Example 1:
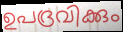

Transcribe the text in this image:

ഉപദ്രവിക്കും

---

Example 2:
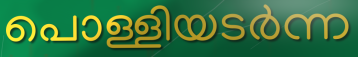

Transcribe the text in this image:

പൊള്ളിയടർന്ന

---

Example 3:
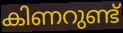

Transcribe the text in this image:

കിണറുണ്ട്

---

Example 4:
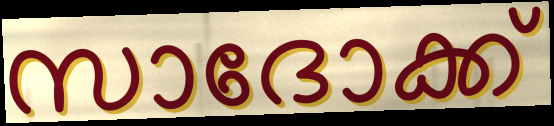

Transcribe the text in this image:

സാദോക്ക്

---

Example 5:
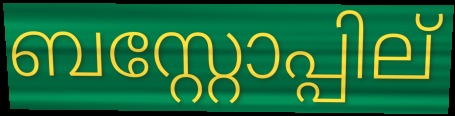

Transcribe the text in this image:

ബസ്റ്റോപ്പില്